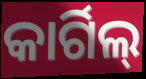
କାର୍ଗିଲ୍